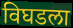
विघडला